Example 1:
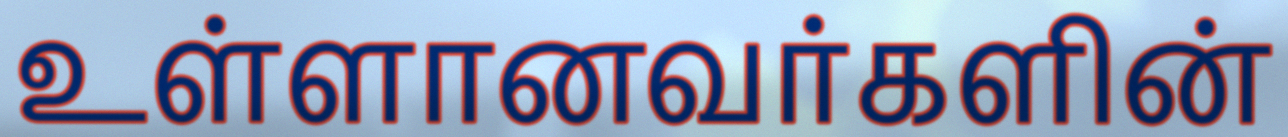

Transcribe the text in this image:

உள்ளானவர்களின்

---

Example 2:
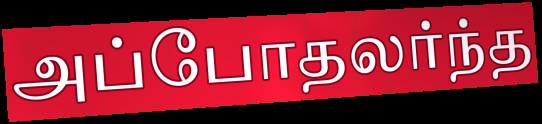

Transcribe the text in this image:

அப்போதலர்ந்த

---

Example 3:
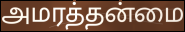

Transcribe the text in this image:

அமரத்தன்மை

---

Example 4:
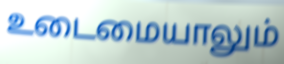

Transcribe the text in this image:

உடைமையாலும்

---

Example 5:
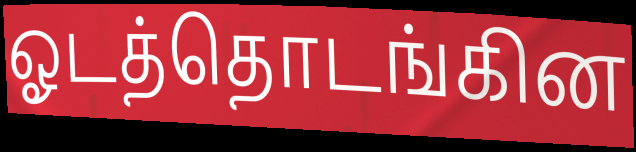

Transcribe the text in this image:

ஓடத்தொடங்கின